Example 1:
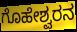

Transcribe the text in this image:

ಗೊಹೇಶ್ವರನ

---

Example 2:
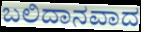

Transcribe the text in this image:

ಬಲಿದಾನವಾದ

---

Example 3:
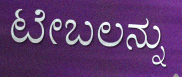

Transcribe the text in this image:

ಟೇಬಲನ್ನು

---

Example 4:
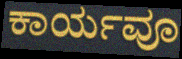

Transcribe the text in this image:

ಕಾರ್ಯವೂ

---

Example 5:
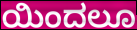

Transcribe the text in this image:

ಯಿಂದಲೂ